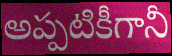
అప్పటికీగానీ